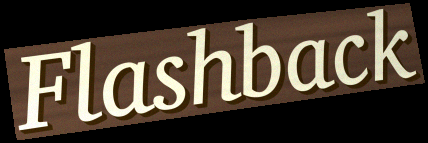
Flashback